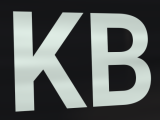
KB